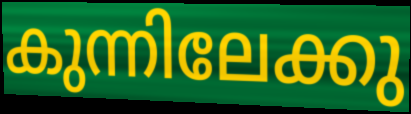
കുന്നിലേക്കു